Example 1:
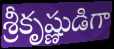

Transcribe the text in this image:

శ్రీకృష్ణుడిగా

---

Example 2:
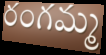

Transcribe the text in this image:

రంగమ్మ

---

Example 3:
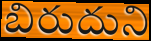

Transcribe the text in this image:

బిరుదుని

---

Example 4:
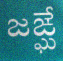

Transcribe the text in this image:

జఙ్ఘే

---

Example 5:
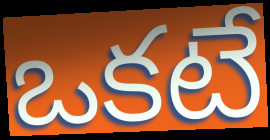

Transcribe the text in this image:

ఒకటే